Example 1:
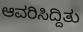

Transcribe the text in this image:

ಆವರಿಸಿದ್ದಿತು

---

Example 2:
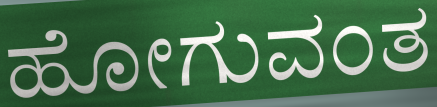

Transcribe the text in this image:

ಹೋಗುವಂತ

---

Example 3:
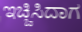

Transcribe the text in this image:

ಇಚ್ಚಿಸಿದಾಗ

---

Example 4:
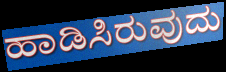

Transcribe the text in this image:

ಹಾಡಿಸಿರುವುದು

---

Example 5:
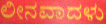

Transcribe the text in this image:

ಲೀನವಾದಳು